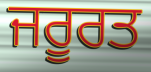
ਜਰੂਰਤ